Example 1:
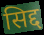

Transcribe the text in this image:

सिद्द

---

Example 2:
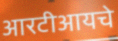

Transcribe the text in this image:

आरटीआयचे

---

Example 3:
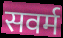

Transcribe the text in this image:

सवर्म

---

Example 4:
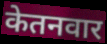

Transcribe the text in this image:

केतनवार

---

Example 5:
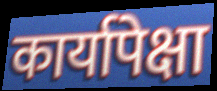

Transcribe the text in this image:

कार्यापेक्षा